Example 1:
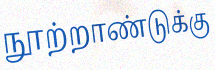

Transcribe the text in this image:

நூற்றாண்டுக்கு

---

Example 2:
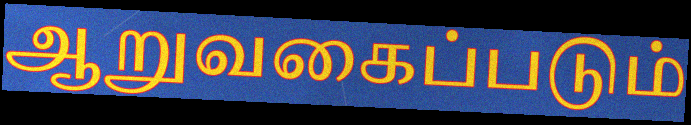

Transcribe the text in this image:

ஆறுவகைப்படும்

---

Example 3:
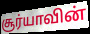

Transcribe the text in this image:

சூர்யாவின்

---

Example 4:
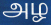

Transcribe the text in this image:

அழ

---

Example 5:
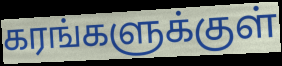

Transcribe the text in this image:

கரங்களுக்குள்